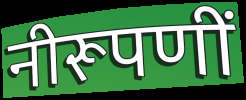
नीरूपणीं